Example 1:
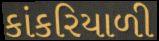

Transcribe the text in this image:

કાંકરિયાળી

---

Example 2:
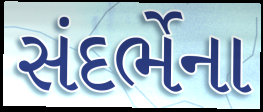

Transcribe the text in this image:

સંદર્ભેના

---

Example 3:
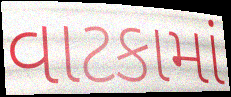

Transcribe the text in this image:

વાટકામાં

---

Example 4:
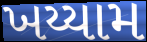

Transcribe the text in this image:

ખય્યામ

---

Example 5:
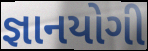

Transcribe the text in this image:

જ્ઞાનયોગી